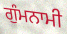
ਗੁੰਮਨਾਮੀ